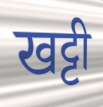
खट्टी